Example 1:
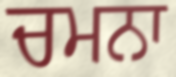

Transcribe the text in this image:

ਚਮਨਾ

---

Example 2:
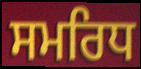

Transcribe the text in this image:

ਸਮਰਿਧ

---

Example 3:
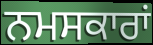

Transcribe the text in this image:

ਨਮਸਕਾਰਾਂ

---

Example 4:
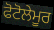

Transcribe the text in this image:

ਫੋਟੋਲੇਮੂਰ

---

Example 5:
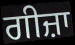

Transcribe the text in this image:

ਗੀਜ਼ਾ